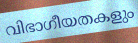
വിഭാഗീയതകളും